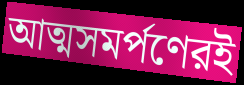
আত্মসমর্পণেরই